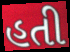
હતી